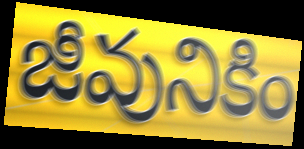
జీవునికిం